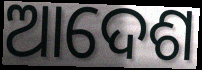
ଆଦେଶ